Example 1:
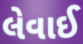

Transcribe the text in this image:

લેવાઈ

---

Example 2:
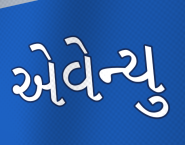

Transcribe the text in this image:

એવેન્યુ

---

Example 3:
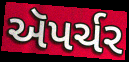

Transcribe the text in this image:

ઍપર્ચર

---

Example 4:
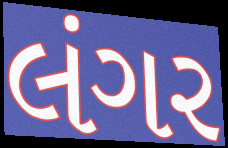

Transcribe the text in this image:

લંગર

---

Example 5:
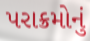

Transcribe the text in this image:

પરાક્રમોનું